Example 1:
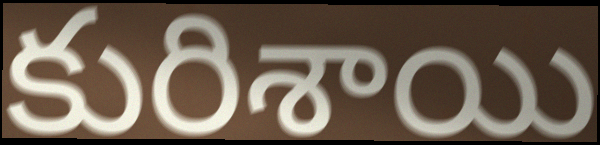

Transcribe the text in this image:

కురిశాయి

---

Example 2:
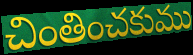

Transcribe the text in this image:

చింతించకుము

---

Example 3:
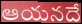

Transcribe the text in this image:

ఆయనదే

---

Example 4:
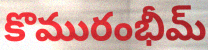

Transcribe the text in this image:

కొమురంభీమ్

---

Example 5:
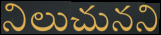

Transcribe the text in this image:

నిలుచునని